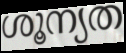
ശൂന്യത